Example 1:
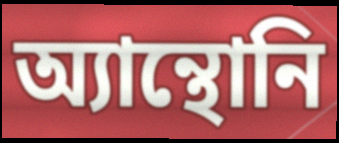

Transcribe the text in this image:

অ্যান্থোনি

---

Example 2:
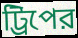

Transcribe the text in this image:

ট্রিপের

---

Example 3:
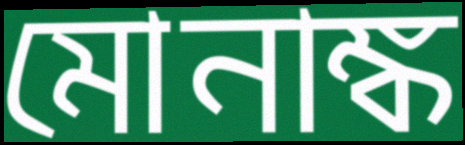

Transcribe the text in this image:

মোনাঙ্ক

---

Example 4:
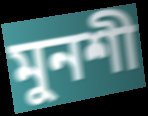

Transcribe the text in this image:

মুনশী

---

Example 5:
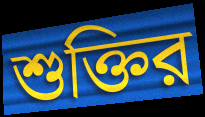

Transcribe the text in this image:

শুক্তির